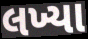
લખ્યા